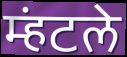
म्हंटले